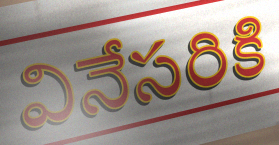
వినేసరికి